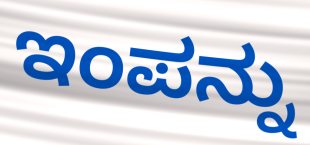
ಇಂಪನ್ನು